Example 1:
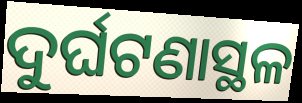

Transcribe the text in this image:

ଦୁର୍ଘଟଣାସ୍ଥଳ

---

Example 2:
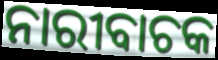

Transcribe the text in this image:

ନାରୀବାଚକ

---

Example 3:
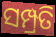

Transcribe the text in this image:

ସମ୍ପ୍ରତି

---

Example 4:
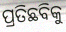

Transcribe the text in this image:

ପ୍ରତିଛବିକୁ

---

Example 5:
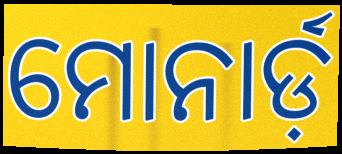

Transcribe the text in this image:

ମୋନାର୍ଡ଼